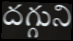
దగ్గుని